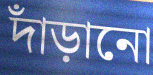
দাঁড়ানো